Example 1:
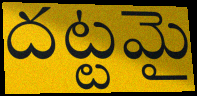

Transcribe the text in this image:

దట్టమై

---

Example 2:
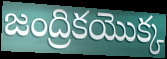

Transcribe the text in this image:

జంద్రికయొక్క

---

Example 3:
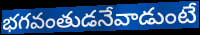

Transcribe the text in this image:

భగవంతుడనేవాడుంటే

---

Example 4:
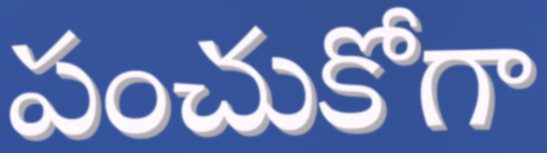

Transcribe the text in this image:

పంచుకోగా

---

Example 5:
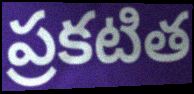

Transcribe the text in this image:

ప్రకటిత